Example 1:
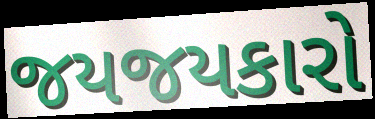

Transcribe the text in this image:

જયજયકારો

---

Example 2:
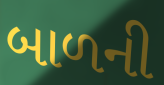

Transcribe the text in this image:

બાળની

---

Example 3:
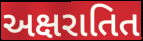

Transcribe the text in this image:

અક્ષરાતિત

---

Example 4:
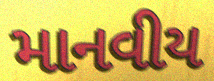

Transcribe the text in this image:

માનવીય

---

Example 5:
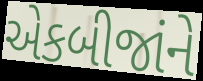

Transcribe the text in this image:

એકબીજાંને